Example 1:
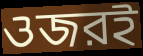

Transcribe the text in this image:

ওজরই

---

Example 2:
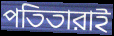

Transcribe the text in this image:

পতিতারাই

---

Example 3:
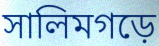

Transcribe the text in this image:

সালিমগড়ে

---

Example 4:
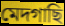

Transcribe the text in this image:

মেদগাছি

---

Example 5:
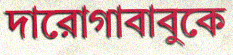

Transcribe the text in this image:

দারোগাবাবুকে